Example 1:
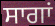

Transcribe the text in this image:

ਸਾਗਾਂ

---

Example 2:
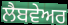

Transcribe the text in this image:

ਲੈਬਵੇਅਰ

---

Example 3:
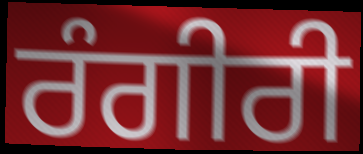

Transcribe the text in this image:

ਰੰਗੀਰੀ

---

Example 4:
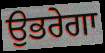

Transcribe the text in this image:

ਉਭਰੇਗਾ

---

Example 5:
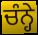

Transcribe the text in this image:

ਚੰਨ੍ਹੇ